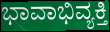
ಭಾವಾಭಿವ್ಯಕ್ತಿ